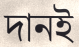
দানই